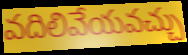
వదిలివేయవచ్చు